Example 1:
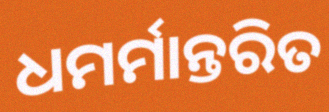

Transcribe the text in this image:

ଧମର୍ମାନ୍ତରିତ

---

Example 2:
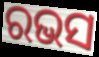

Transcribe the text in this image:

ରଭସ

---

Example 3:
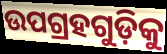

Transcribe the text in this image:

ଉପଗ୍ରହଗୁଡ଼ିକୁ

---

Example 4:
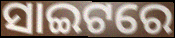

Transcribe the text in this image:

ସାଇଟରେ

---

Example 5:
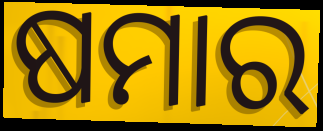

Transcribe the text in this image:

ଷମାର